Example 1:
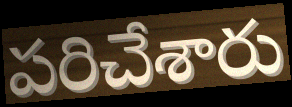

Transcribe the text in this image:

పరిచేశారు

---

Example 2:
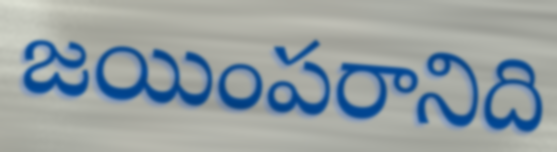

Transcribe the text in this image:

జయింపరానిది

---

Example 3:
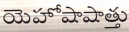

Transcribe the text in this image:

యెహోషాషాత్తు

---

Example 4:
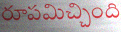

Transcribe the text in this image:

రూపమిచ్చింది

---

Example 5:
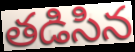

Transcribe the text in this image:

తడిసిన